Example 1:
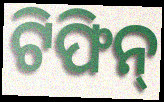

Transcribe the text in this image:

ଟିଫିନ୍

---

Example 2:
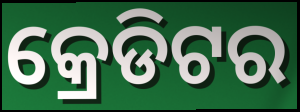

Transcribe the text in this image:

କ୍ରେଡିଟର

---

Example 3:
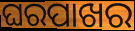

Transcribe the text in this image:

ଘରପାଖର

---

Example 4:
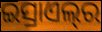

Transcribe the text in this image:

ଇସ୍ରାଏଲ୍‌ର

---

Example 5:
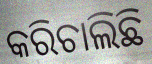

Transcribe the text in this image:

କରିଚାଲିଛି